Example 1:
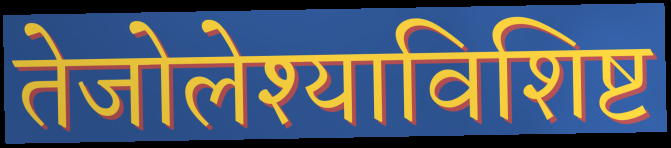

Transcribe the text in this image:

तेजोलेश्याविशिष्ट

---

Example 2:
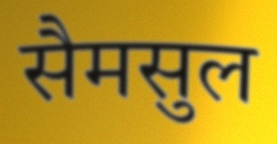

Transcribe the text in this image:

सैमसुल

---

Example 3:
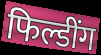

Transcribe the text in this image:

फिल्डींग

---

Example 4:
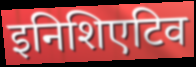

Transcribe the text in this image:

इनिशिएटिव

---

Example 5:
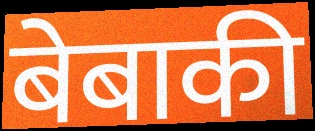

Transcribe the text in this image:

बेबाकी